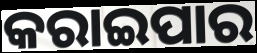
କରାଇପାର